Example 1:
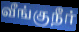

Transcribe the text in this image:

வீங்குநீர்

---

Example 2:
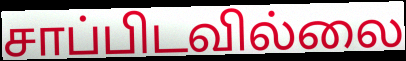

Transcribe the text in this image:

சாப்பிடவில்லை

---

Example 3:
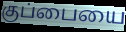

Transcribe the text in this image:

குப்பையை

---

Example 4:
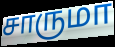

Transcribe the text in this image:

சாருமா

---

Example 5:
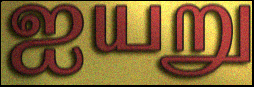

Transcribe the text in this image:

ஐயறு